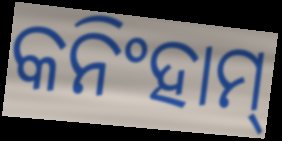
କନିଂହାମ୍